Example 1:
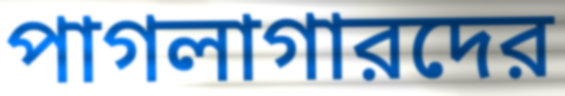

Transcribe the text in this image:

পাগলাগারদের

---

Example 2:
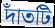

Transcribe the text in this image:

দাঁতটি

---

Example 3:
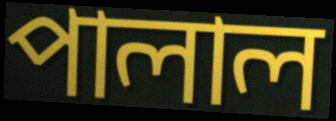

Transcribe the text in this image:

পালাল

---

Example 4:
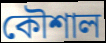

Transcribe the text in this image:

কৌশাল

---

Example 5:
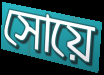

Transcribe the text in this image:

সোয়ে